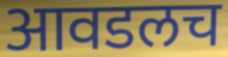
आवडलच